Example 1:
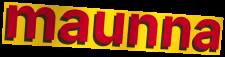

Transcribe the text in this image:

maunna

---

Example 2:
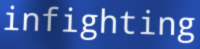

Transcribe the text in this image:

infighting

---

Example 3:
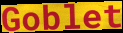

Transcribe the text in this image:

Goblet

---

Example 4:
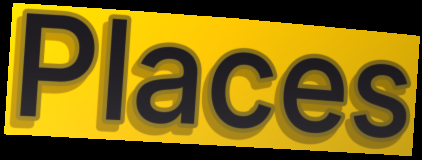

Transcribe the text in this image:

Places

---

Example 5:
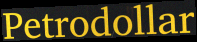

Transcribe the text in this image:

Petrodollar